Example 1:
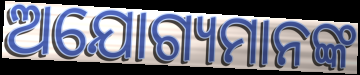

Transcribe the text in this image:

ଅଯୋଗ୍ୟମାନଙ୍କ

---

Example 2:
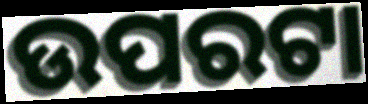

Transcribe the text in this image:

ଉପରଟା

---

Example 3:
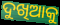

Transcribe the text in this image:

ଦୁଖିଆକୁ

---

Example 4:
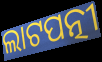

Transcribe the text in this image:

ଲାଟପତ୍ନୀ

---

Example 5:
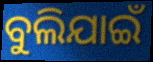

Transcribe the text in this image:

ବୁଲିଯାଇଁ